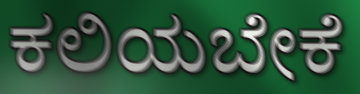
ಕಲಿಯಬೇಕೆ